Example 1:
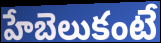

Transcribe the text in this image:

హేబెలుకంటే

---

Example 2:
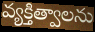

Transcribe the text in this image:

వ్యక్తిత్వాలను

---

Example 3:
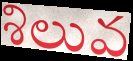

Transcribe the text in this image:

శిలువ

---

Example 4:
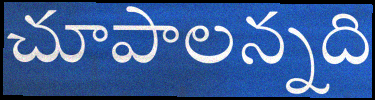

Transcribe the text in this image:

చూపాలన్నది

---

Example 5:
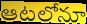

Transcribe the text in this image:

ఆటలోనూ